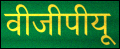
वीजीपीयू